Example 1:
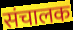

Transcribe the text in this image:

संचालक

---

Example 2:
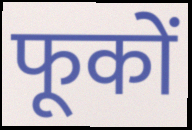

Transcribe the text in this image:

फूकों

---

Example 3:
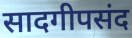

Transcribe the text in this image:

सादगीपसंद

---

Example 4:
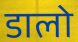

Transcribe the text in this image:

डालो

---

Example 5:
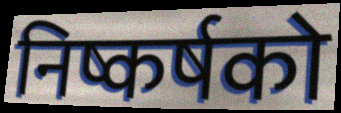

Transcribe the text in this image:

निष्कर्षको